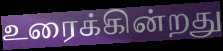
உரைக்கின்றது